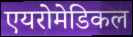
एयरोमेडिकल